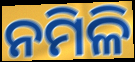
ନମିଳି